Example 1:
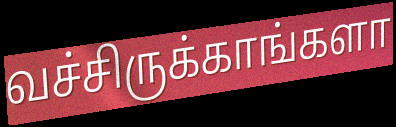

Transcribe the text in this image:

வச்சிருக்காங்களா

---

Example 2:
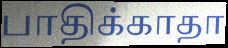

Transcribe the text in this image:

பாதிக்காதா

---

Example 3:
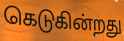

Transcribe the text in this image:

கெடுகின்றது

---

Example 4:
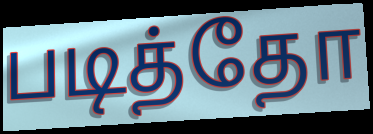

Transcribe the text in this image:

படித்தோ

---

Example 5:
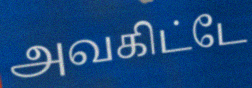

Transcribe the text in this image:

அவகிட்டே